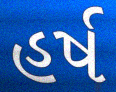
હર્ષ